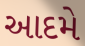
આદમે